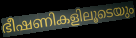
ഭീഷണികളിലൂടെയും